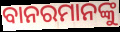
ବାନରମାନଙ୍କୁ